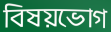
বিষয়ভোগ